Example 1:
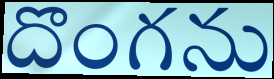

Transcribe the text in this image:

దొంగను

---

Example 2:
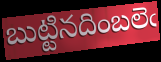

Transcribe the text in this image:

బుట్టినదింబలెఁ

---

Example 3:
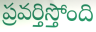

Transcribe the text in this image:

ప్రవర్తిస్తోంది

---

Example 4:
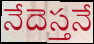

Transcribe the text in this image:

నేదెస్తనే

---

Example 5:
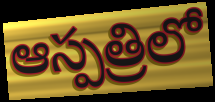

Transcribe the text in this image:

ఆస్పత్రిలో